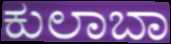
ಕುಲಾಬಾ